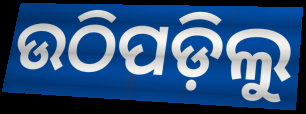
ଉଠିପଡ଼ିଲୁ